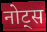
नोट्‌स